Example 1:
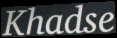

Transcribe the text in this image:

Khadse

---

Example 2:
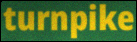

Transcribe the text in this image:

turnpike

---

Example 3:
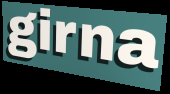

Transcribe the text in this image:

girna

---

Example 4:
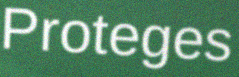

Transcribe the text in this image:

Proteges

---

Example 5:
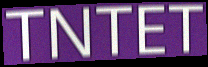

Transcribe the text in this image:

TNTET